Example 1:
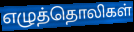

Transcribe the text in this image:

எழுத்தொலிகள்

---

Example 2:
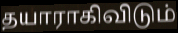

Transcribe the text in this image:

தயாராகிவிடும்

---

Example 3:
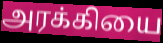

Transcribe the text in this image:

அரக்கியை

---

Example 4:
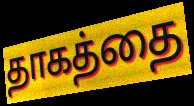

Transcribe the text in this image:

தாகத்தை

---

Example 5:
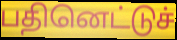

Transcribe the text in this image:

பதினெட்டுச்